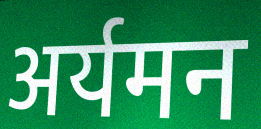
अर्यमन